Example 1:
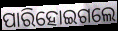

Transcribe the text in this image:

ପାରିହୋଇଗଲେ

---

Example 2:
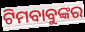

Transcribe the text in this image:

ଟିମବାବୁଙ୍କର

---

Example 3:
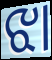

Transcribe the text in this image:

ଝା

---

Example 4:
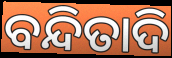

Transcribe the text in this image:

ବନ୍ଦିତାଦି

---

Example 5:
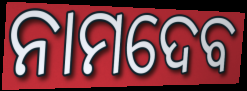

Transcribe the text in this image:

ନାମଦେବ